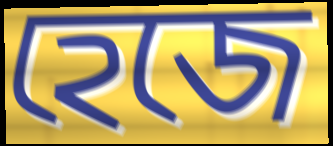
হেজে